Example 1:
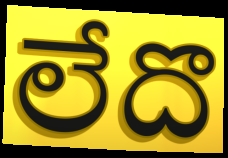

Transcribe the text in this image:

లేదొ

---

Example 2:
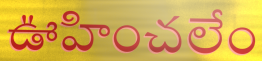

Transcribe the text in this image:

ఊహించలేం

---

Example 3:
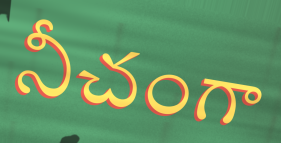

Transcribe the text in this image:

నీచంగా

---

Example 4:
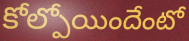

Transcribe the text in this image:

కోల్పోయిందేంటో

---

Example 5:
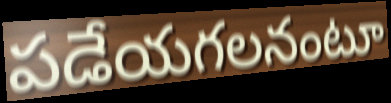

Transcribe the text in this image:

పడేయగలనంటూ